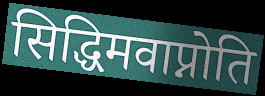
सिद्धिमवाप्नोति